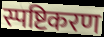
स्पष्टिकरण